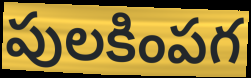
పులకింపగ